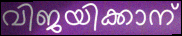
വിജയിക്കാന്